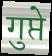
गुप्ते